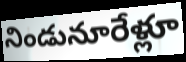
నిండునూరేళ్లూ